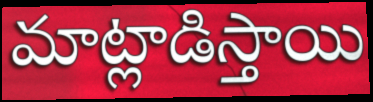
మాట్లాడిస్తాయి